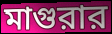
মাগুরার